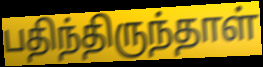
பதிந்திருந்தாள்